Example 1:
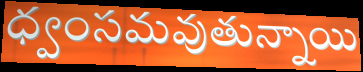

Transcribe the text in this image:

ధ్వంసమవుతున్నాయి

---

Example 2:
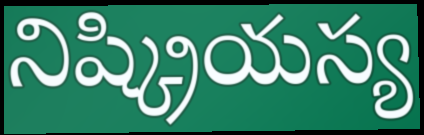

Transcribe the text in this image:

నిష్క్రియస్య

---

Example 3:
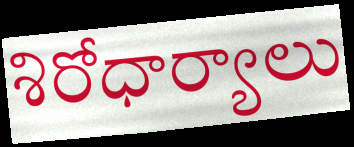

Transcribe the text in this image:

శిరోధార్యాలు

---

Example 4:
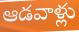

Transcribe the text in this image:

ఆడవాళ్లు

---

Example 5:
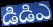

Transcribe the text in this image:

డిడిఎ